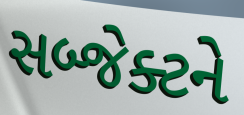
સબ્જેક્ટને